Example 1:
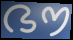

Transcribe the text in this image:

ഭൗ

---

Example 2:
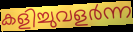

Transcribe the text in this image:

കളിച്ചുവളർന്ന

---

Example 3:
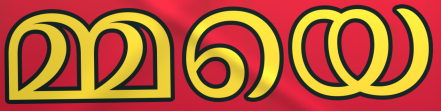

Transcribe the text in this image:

മ്മയെ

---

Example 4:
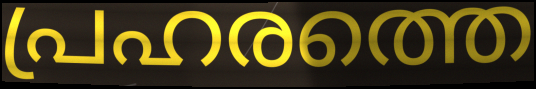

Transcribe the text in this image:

പ്രഹരത്തെ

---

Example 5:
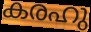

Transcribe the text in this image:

കരഹു